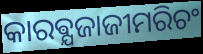
କାରଵ୍ଯଜାଜୀମରିଚଂ